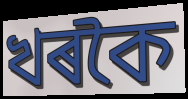
খৰকৈ